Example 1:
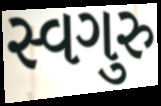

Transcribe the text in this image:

સ્વગુરુ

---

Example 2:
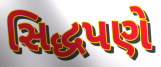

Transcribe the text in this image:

સિદ્ધપણે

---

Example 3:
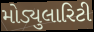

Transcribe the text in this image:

મોડ્યુલારિટી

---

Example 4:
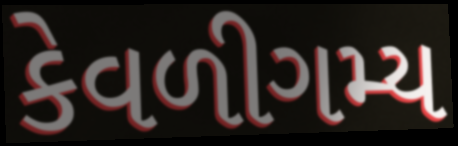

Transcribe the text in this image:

કેવળીગમ્ય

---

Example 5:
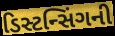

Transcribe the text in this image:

ડિસ્ટન્સિંગની